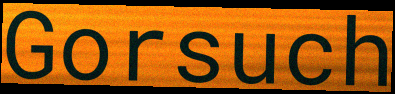
Gorsuch